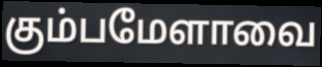
கும்பமேளாவை